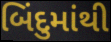
બિંદુમાંથી